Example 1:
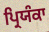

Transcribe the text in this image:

ਪ੍ਰਿਯੰਕਾ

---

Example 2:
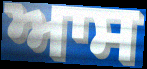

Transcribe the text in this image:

ਆਸ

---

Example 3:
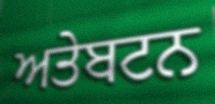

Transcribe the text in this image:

ਅਤੇਬਟਨ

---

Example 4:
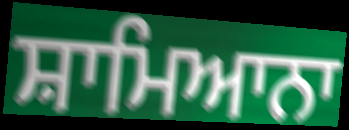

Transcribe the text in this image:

ਸ਼ਾਮਿਆਨਾ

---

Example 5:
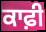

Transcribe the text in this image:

ਕਾਫ਼ੀ